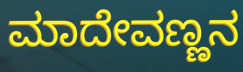
ಮಾದೇವಣ್ಣನ